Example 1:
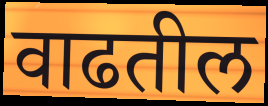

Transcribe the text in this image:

वाढतील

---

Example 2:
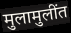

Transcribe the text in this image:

मुलामुलींत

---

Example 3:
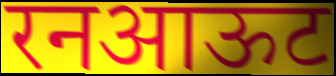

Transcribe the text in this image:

रनआऊट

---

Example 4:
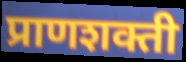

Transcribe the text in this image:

प्राणशक्ती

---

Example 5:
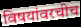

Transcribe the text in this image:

विषयांवरचीच